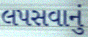
લપસવાનું